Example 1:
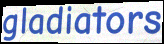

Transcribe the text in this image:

gladiators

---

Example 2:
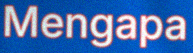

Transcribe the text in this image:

Mengapa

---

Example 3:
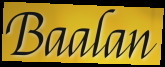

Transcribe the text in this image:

Baalan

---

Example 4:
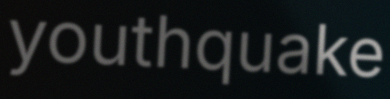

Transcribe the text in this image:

youthquake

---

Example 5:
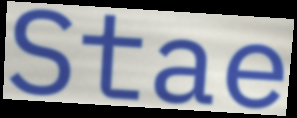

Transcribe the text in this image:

Stae